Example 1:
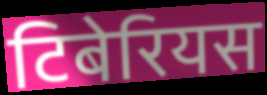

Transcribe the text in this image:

टिबेरियस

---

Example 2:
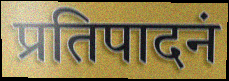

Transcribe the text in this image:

प्रतिपादनं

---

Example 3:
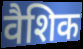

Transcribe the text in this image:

वैशिक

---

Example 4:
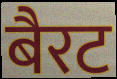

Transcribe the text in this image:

बैरट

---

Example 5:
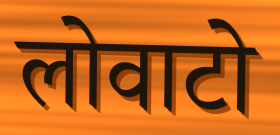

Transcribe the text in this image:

लोवाटो